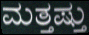
ಮತ್ತಷ್ತು